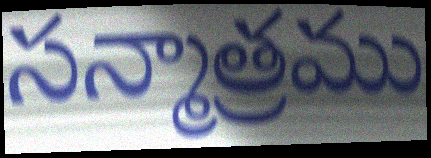
సన్మాత్రము